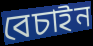
বেচাইন